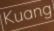
Kuang